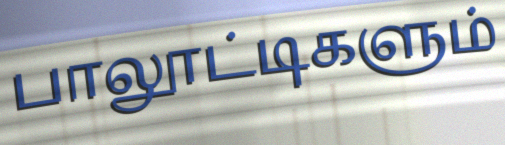
பாலூட்டிகளும்